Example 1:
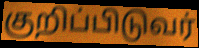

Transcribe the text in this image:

குறிப்பிடுவர்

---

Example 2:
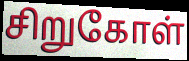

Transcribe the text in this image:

சிறுகோள்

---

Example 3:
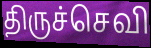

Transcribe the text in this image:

திருச்செவி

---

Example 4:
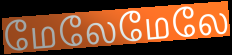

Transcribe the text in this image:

மேலேமேலே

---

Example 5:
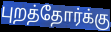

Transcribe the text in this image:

புறத்தோர்க்கு